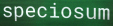
speciosum